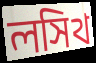
লসিথ